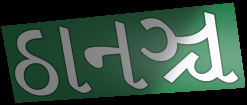
ઠાનઞ્ચ